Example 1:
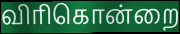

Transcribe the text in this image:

விரிகொன்றை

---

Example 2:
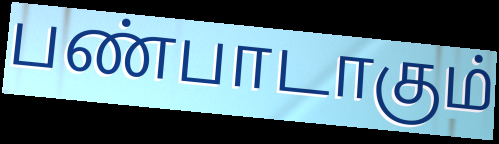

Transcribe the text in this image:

பண்பாடாகும்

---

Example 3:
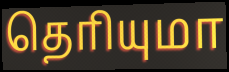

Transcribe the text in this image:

தெரியுமா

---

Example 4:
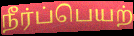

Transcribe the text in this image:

நீர்ப்பெயற்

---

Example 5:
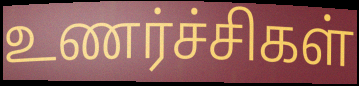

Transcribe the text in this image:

உணர்ச்சிகள்